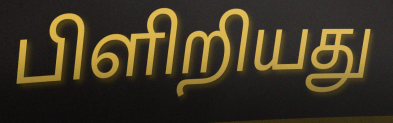
பிளிறியது